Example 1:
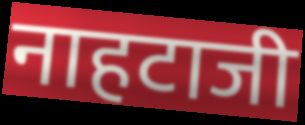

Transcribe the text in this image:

नाहटाजी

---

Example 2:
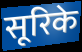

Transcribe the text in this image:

सूरिके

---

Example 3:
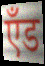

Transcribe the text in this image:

एँड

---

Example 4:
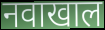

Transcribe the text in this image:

नवाखाल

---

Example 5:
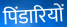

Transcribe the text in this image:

पिंडारियों